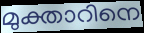
മുക്താറിനെ